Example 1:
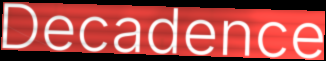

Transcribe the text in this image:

Decadence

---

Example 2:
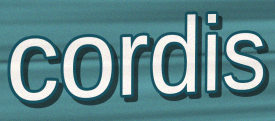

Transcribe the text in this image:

cordis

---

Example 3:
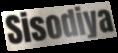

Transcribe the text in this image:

Sisodiya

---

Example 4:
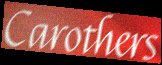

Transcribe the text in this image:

Carothers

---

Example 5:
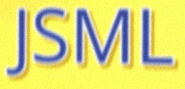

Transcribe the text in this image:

JSML